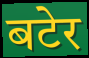
बटेर